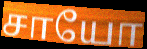
சாயோ